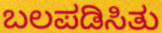
ಬಲಪಡಿಸಿತು